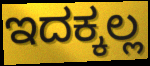
ಇದಕ್ಕಲ್ಲ